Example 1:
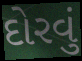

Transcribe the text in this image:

દોરવું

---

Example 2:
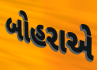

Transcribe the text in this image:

બોહરાએ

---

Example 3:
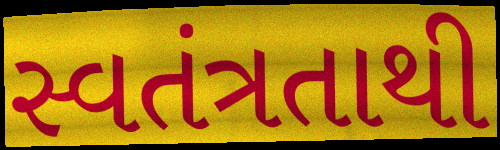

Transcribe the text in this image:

સ્વતંત્રતાથી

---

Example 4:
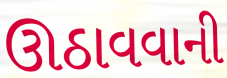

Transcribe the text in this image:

ઊઠાવવાની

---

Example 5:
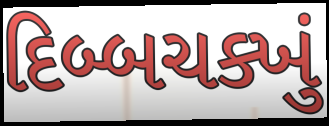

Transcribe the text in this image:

દિબ્બચક્ખું